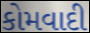
કોમવાદી